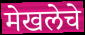
मेखलेचे